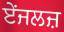
ਏਂਜਲਜ਼